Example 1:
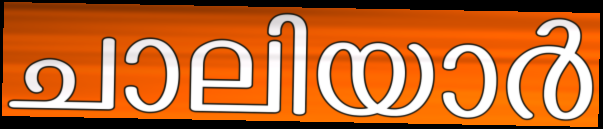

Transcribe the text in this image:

ചാലിയാർ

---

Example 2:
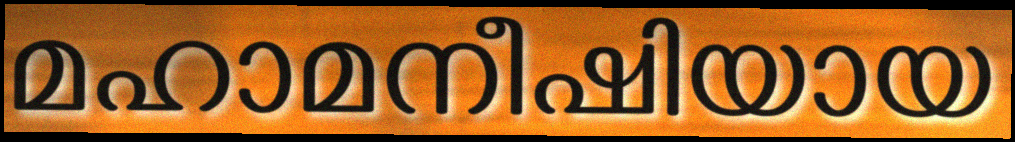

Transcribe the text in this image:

മഹാമനീഷിയായ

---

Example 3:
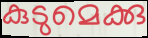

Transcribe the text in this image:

കുടുമെക്കു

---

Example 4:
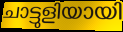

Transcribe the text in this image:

ചാട്ടുളിയായി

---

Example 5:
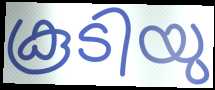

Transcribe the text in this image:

കൂടിയു